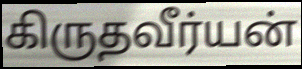
கிருதவீர்யன்